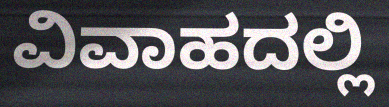
ವಿವಾಹದಲ್ಲಿ